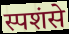
स्पशंसे